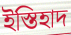
ইস্তিহাদ